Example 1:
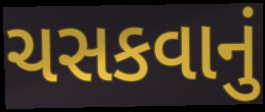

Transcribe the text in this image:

ચસકવાનું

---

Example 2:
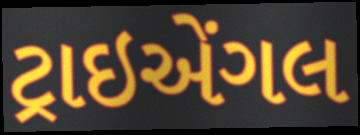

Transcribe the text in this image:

ટ્રાઇએંગલ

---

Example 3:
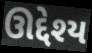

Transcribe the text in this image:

ઊદ્દેશ્ય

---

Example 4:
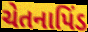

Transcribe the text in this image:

ચેતનાપિંડ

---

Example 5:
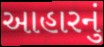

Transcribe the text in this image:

આહારનું